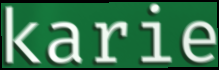
karie